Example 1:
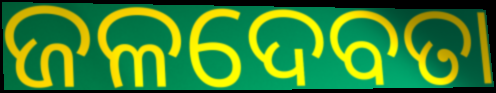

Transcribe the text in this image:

ଜଳଦେବତା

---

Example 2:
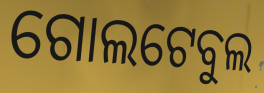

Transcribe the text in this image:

ଗୋଲଟେବୁଲ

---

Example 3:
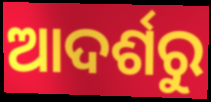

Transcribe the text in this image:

ଆଦର୍ଶରୁ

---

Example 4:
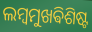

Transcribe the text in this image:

ଲମ୍ବମୁଖଵିଶିଷ୍ଟ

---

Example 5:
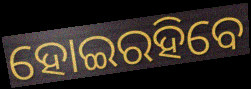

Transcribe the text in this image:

ହୋଇରହିବେ